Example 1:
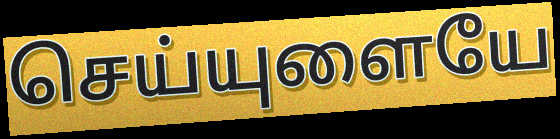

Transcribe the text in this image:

செய்யுளையே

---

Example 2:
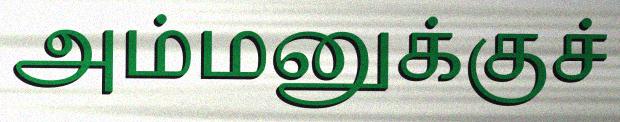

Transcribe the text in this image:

அம்மனுக்குச்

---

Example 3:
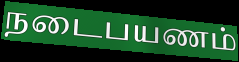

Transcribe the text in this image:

நடைபயணம்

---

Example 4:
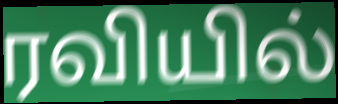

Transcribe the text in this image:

ரவியில்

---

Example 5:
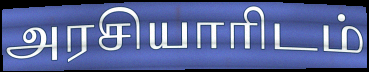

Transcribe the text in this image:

அரசியாரிடம்